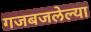
गजबजलेल्या